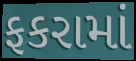
ફકરામાં